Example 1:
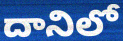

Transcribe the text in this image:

దానిలో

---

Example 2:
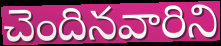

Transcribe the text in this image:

చెందినవారిని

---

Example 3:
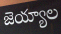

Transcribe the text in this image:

జెయ్యాల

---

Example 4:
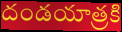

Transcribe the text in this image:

దండయాత్రకి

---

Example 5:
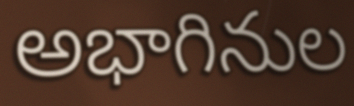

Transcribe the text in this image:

అభాగినుల